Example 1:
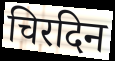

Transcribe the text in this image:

चिरदिन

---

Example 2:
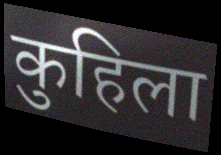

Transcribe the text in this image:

कुहिला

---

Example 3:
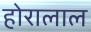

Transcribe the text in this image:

होरालाल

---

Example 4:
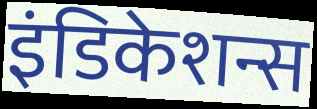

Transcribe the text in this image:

इंडिकेशन्स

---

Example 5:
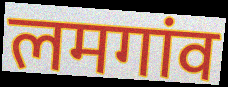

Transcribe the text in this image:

लमगांव